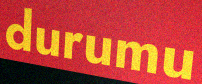
durumu